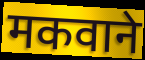
मकवाने